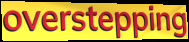
overstepping